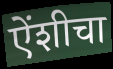
ऐंशीचा